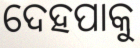
ଦେହପାକୁ